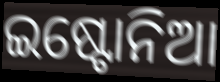
ଇଷ୍ଟୋନିଆ